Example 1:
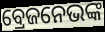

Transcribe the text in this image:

ବ୍ରେଜନେଭଙ୍କ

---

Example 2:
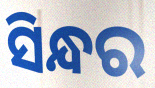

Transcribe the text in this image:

ସିନ୍ଧର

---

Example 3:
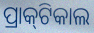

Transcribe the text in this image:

ପ୍ରାକ୍‌ଟିକାଲ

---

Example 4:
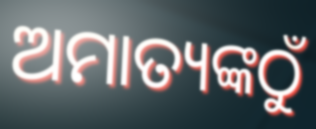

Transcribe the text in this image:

ଅମାତ୍ୟଙ୍କଠୁଁ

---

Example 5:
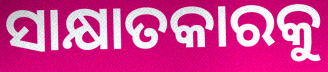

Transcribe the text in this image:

ସାକ୍ଷାତକାରକୁ